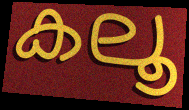
കലൂ